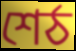
শেঠ